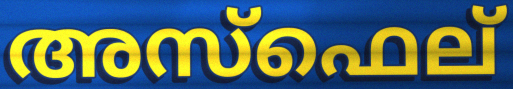
അസ്ഫെല്